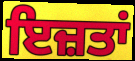
ਇਜ਼ਤਾਂ